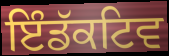
ਇੰਡੱਕਟਿਵ